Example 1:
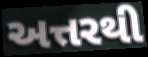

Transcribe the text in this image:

અત્તરથી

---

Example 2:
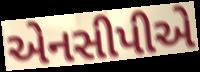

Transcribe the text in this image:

એનસીપીએ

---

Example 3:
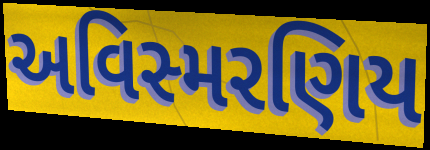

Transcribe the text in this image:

અવિસ્મરણિય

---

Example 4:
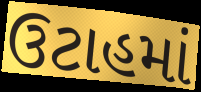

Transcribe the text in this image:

ઉટાહમાં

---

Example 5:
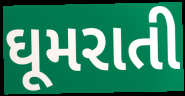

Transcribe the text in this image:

ઘૂમરાતી